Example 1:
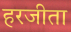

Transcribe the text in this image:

हरजीता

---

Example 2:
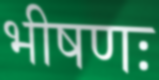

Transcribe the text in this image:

भीषणः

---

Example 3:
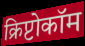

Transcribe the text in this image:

क्रिप्टोकॉम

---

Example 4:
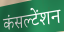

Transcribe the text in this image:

कंसल्टेंशन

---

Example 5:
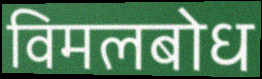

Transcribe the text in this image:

विमलबोध